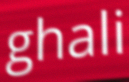
ghali